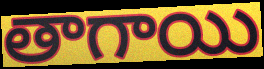
తాగాయి